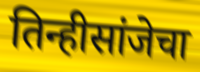
तिन्हीसांजेचा